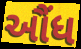
ઔંધ